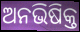
ଅନଭିଷିକ୍ତ